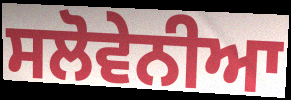
ਸਲੋਵੇਨੀਆ